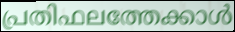
പ്രതിഫലത്തേക്കാൾ